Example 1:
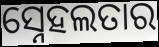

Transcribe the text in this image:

ସ୍ନେହଲତାର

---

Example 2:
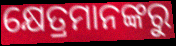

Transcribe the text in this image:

କ୍ଷେତ୍ରମାନଙ୍କରୁ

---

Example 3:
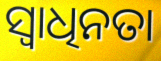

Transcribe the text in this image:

ସ୍ୱାଧିନତା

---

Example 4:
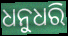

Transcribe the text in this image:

ଧନୁଧରି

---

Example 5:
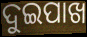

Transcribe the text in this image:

ଦୁଇପାଖ